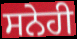
ਸਨੇਹੀ